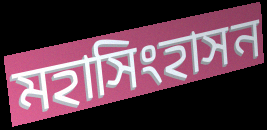
মহাসিংহাসন